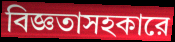
বিজ্ঞতাসহকারে